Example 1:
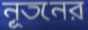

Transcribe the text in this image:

নূতনের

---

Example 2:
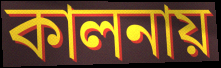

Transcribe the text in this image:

কালনায়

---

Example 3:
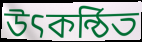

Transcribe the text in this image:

উৎকন্ঠিত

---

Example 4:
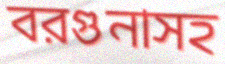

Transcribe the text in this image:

বরগুনাসহ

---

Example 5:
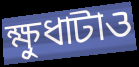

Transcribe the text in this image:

ক্ষুধাটাও